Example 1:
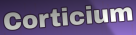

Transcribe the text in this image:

Corticium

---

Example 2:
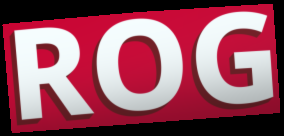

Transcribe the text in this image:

ROG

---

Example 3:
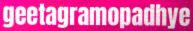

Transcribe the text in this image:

geetagramopadhye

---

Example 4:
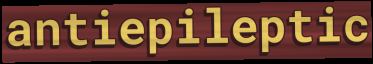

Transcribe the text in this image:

antiepileptic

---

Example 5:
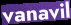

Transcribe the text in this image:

vanavil